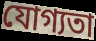
যোগ্যতা